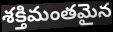
శక్తిమంతమైన